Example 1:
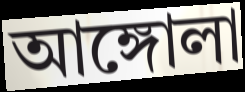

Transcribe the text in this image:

আঙ্গোলা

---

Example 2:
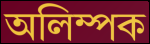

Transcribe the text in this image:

অলিম্পক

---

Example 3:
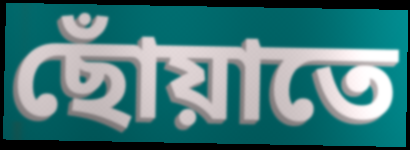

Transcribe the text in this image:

ছোঁয়াতে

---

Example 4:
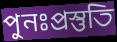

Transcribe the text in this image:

পুনঃপ্রস্তুতি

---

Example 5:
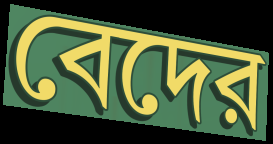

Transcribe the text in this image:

বেদের